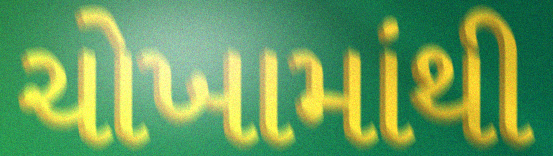
ચોખામાંથી